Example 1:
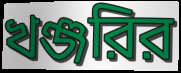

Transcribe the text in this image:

খঞ্জরির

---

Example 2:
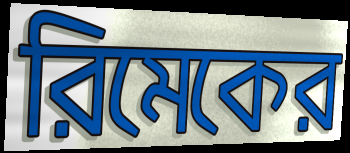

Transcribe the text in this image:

রিমেকের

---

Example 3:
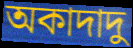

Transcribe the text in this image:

অকাদাদু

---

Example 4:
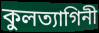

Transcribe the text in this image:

কুলত্যাগিনী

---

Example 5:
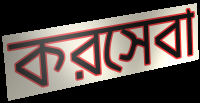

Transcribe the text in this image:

করসেবা